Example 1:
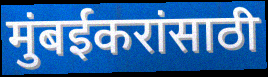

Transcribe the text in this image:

मुंबईकरांसाठी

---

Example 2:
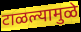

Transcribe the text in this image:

टाळल्यामुळे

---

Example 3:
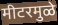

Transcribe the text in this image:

मीटरमुळे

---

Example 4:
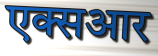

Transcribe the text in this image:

एक्सआर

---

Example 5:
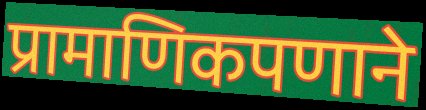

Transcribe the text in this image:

प्रामाणिकपणाने